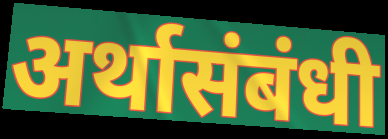
अर्थासंबंधी